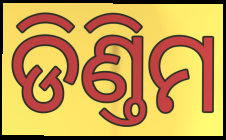
ଡିଣ୍ତିମ